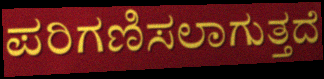
ಪರಿಗಣಿಸಲಾಗುತ್ತದೆ